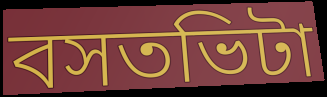
বসতভিটা